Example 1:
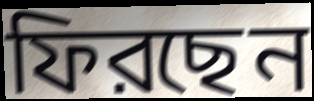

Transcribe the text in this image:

ফিরছেন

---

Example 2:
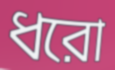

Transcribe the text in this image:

ধরো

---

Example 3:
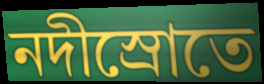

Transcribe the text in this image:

নদীস্রোতে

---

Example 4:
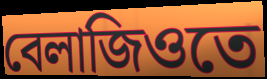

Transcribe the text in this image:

বেলাজিওতে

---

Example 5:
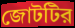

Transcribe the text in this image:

জোটটির